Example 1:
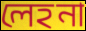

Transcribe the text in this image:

লেহনা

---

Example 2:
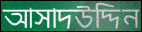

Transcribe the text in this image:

আসাদউদ্দিন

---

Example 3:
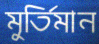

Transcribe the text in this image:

মুর্তিমান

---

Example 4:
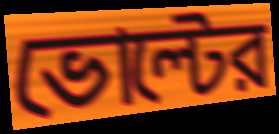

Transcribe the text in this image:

ভোল্টের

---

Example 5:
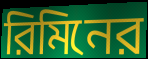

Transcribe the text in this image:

রিমিনের